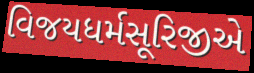
વિજયધર્મસૂરિજીએ